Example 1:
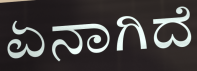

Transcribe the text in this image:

ಏನಾಗಿದೆ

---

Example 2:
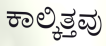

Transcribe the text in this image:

ಕಾಲ್ಕಿತ್ತವು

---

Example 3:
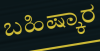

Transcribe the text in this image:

ಬಹಿಷ್ಕಾರ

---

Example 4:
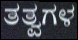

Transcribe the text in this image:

ತತ್ವಗಳ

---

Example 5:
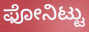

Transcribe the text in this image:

ಫೋನಿಟ್ಟು